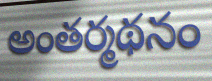
అంతర్మథనం